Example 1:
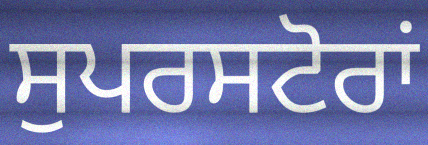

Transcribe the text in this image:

ਸੁਪਰਸਟੋਰਾਂ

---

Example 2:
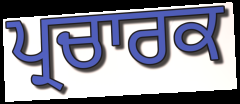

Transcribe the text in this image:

ਪ੍ਰਚਾਰਕ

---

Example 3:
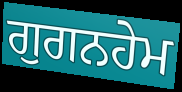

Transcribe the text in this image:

ਗੁਗਨਹੇਮ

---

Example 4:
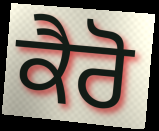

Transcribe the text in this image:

ਕੈਰੋ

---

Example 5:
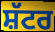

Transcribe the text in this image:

ਸ਼ੱਟਰ